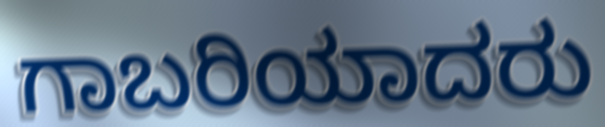
ಗಾಬರಿಯಾದರು